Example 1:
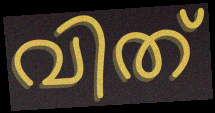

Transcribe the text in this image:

വിത്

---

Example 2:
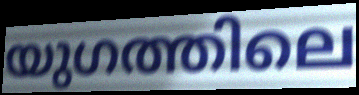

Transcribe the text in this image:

യുഗത്തിലെ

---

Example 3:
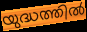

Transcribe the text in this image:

യുദ്ധത്തിൽ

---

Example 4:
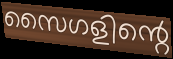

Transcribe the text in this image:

സൈഗളിന്റെ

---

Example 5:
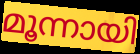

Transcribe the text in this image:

മൂന്നായി